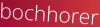
bochhorer